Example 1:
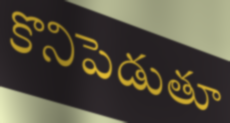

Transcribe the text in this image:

కొనిపెడుతూ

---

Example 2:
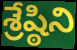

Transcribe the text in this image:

శ్రేష్ఠిని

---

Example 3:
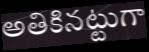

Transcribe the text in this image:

అతికినట్టుగా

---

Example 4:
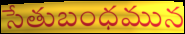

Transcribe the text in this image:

సేతుబంధమున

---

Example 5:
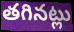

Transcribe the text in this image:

తగినట్లు